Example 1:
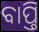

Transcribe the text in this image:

ବାପ୍ତି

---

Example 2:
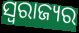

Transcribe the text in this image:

ସ୍ବରାଜ୍ୟର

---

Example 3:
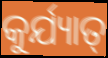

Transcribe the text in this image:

କୁର୍ଯ୍ୟାତ୍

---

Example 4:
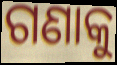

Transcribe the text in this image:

ଗଣାକୁ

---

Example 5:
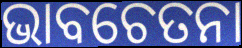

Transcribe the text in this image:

ଭାବଚେତନା